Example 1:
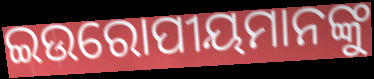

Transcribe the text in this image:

ଇଉରୋପୀୟମାନଙ୍କୁ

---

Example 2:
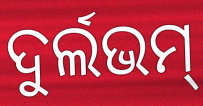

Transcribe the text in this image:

ଦୁର୍ଲଭମ୍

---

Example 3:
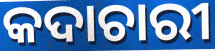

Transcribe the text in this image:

କଦାଚାରୀ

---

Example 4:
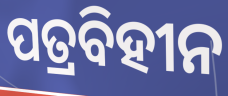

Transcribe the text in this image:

ପତ୍ରବିହୀନ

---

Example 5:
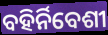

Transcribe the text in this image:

ବହିର୍ନିବେଶୀ